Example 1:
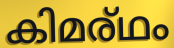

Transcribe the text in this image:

കിമര്ഥം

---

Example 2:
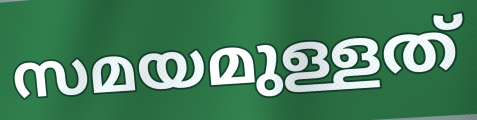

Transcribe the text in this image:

സമയമുള്ളത്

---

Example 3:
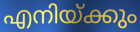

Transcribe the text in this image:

എനിയ്ക്കും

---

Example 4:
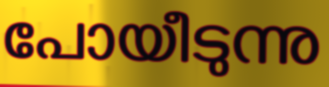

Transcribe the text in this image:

പോയീടുന്നു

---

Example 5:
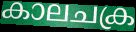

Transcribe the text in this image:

കാലചക്ര